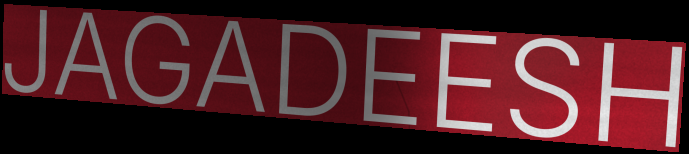
JAGADEESH